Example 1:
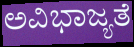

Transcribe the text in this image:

ಅವಿಭಾಜ್ಯತೆ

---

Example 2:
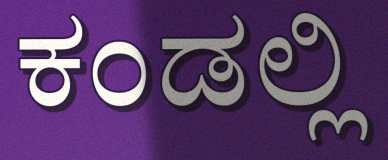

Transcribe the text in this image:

ಕಂಡಲ್ಲಿ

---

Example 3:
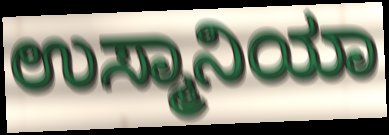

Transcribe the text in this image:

ಉಸ್ಮಾನಿಯಾ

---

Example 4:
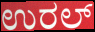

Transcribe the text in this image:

ಉರಲ್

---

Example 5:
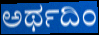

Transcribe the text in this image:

ಅರ್ಥದಿಂ